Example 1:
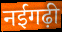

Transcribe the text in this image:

नईगढ़ी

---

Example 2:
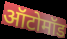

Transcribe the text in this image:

ऑटोमॉड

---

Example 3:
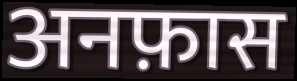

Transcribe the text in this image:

अनफ़ास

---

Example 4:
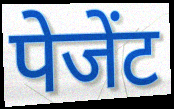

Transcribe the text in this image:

पेजेंट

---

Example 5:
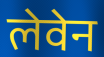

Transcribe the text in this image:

लेवेन